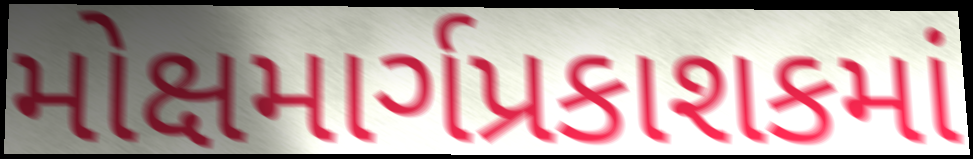
મોક્ષમાર્ગપ્રકાશકમાં